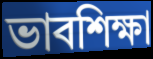
ভাবশিক্ষা